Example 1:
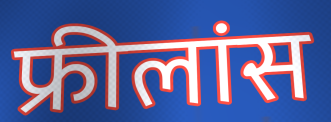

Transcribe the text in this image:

फ्रीलांस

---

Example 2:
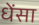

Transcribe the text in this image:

धेंसा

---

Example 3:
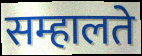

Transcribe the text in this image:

सम्हालते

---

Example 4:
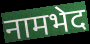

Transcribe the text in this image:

नामभेद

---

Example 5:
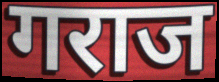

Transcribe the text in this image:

गराज